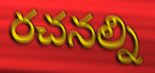
రచనల్ని